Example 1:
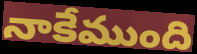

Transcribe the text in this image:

నాకేముంది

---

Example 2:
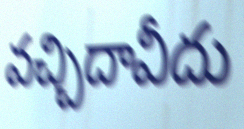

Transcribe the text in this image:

వచ్చిదావీదు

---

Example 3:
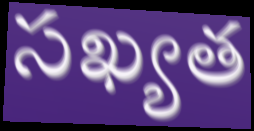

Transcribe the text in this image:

సఖ్యత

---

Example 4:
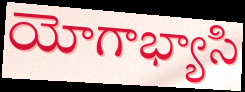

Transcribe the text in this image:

యోగాభ్యాసి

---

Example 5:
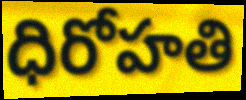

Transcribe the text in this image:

ధిరోహతి